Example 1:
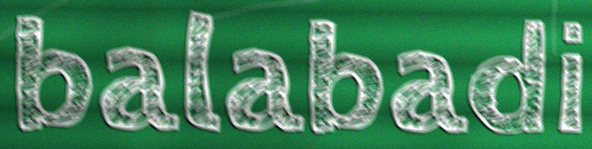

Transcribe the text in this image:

balabadi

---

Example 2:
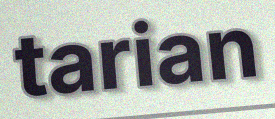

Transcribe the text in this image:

tarian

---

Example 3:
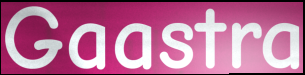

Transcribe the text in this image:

Gaastra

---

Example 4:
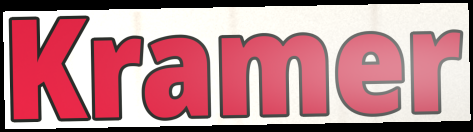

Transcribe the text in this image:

Kramer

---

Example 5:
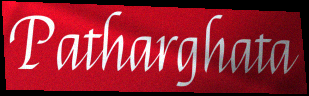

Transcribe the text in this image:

Patharghata